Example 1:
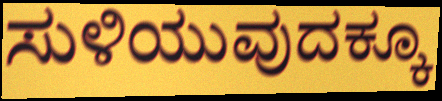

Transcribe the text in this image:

ಸುಳಿಯುವುದಕ್ಕೂ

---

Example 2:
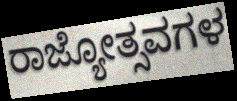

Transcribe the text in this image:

ರಾಜ್ಯೋತ್ಸವಗಳ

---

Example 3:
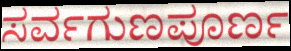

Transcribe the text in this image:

ಸರ್ವಗುಣಪೂರ್ಣ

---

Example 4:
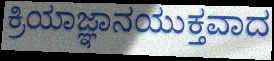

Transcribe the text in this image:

ಕ್ರಿಯಾಜ್ಞಾನಯುಕ್ತವಾದ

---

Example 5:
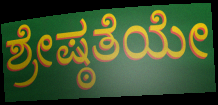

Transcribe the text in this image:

ಶ್ರೇಷ್ಠತೆಯೇ